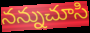
నన్నుచూసి